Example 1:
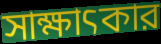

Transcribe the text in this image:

সাক্ষাৎকার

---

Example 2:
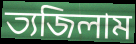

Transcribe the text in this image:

ত্যজিলাম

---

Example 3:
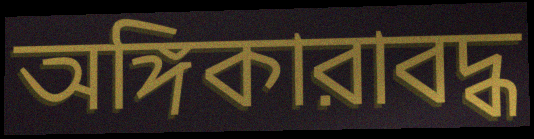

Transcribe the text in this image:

অঙ্গিকারাবদ্ধ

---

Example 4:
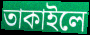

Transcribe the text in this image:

তাকাইলে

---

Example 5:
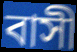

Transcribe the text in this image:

বাসী